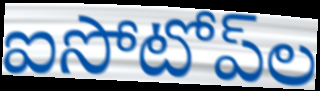
ఐసోటోప్‌ల